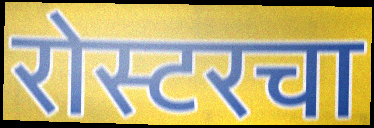
रोस्टरचा